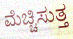
ಮೆಚ್ಚಿಸುತ್ತ